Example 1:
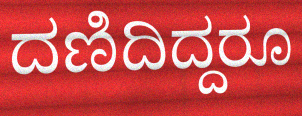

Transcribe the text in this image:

ದಣಿದಿದ್ದರೂ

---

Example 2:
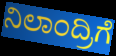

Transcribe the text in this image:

ನಿಲಾಂದ್ರಿಗೆ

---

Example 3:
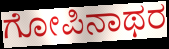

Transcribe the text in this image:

ಗೋಪಿನಾಥರ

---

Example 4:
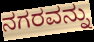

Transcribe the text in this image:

ನಗರವನ್ನು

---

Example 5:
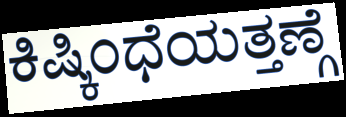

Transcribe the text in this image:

ಕಿಷ್ಕಿಂಧೆಯತ್ತಣ್ಗೆ